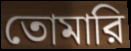
তোমারি